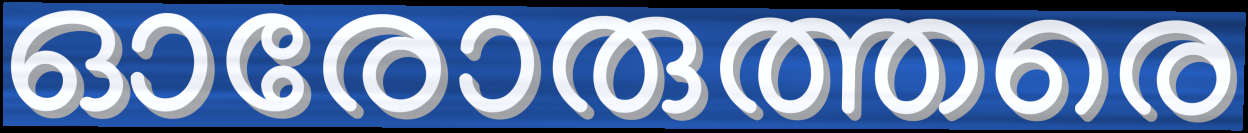
ഓരോരുത്തരെ